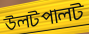
উলটপালট